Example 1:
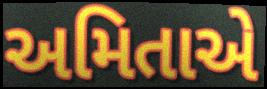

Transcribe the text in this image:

અમિતાએ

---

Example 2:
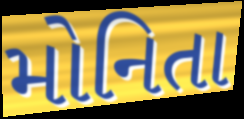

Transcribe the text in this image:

મોનિતા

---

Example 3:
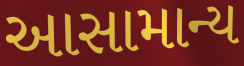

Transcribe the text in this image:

આસામાન્ય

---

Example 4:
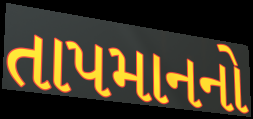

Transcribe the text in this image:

તાપમાનનો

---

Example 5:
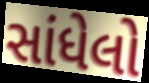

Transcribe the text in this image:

સાંધેલો